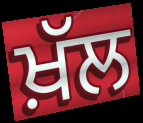
ਖ਼ੱਲ